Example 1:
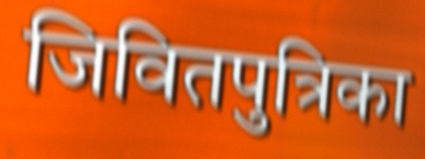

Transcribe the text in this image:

जिवितपुत्रिका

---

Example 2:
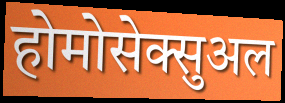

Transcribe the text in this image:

होमोसेक्सुअल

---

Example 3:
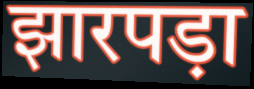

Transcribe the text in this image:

झारपड़ा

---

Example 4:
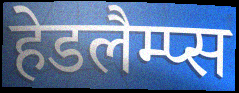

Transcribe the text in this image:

हेडलैम्प्स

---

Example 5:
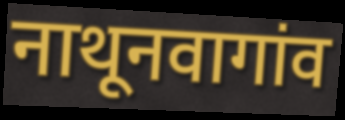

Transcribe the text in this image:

नाथूनवागांव